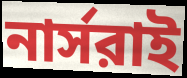
নার্সরাই